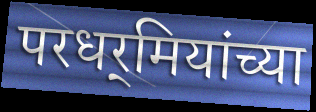
परधर्मियांच्या